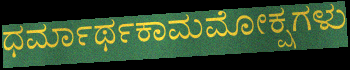
ಧರ್ಮಾರ್ಥಕಾಮಮೋಕ್ಷಗಳು